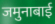
जमुनाबाई